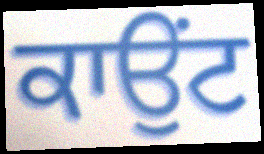
ਕਾਉਂਟ